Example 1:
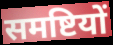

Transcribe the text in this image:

समष्टियों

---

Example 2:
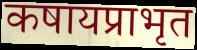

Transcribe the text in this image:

कषायप्राभृत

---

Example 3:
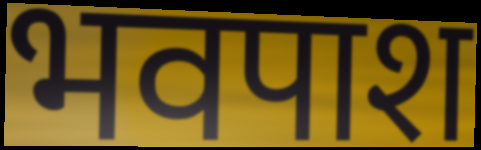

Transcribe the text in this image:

भवपाश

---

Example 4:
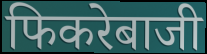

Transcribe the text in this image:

फिकरेबाजी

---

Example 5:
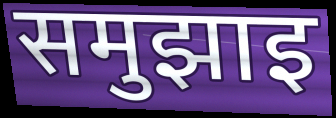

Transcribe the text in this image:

समुझाइ